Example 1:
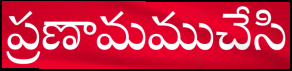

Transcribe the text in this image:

ప్రణామముచేసి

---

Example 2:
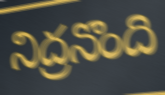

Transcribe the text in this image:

నిద్రనొంది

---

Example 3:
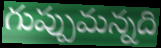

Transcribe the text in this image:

గుప్పుమన్నది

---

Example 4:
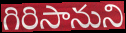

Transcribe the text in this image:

గిరిసానుని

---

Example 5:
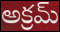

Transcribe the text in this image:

అక్రమ్